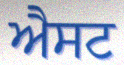
ਐਸਟ